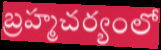
బ్రహ్మచర్యంలో